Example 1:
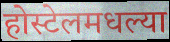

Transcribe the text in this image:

होस्टेलमधल्या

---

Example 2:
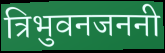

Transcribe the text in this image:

त्रिभुवनजननी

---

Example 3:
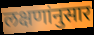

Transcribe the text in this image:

लक्षणांनुसार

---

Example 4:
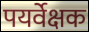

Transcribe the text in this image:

पयर्वेक्षक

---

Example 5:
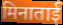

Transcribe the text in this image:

मिनाताई